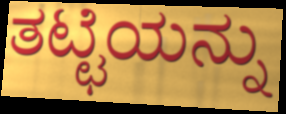
ತಟ್ಟೆಯನ್ನು